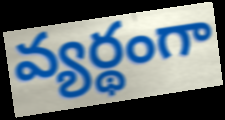
వ్యర్థంగా